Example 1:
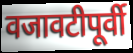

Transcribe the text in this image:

वजावटीपूर्वी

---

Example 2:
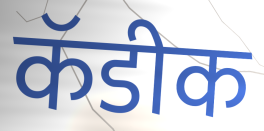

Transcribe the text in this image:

कॅडीक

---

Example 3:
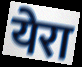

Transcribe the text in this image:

येरा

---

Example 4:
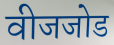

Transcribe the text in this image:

वीजजोड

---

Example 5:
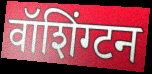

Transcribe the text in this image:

वॉशिंग्टन